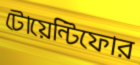
টোয়েন্টিফোর